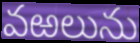
వఱలును